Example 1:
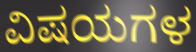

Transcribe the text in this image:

ವಿಷಯಗಳ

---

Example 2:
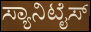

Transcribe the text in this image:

ಸ್ಯಾನಿಟೈಸ್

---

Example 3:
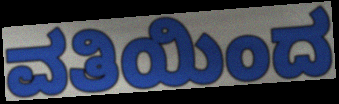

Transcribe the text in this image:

ವತಿಯಿಂದ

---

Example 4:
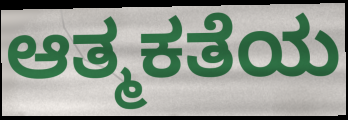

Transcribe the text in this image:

ಆತ್ಮಕತೆಯ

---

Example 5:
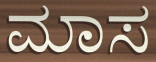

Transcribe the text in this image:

ಮಾಸ